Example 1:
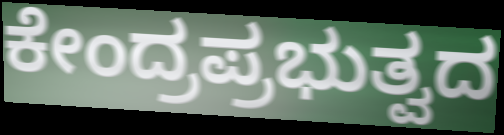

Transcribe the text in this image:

ಕೇಂದ್ರಪ್ರಭುತ್ವದ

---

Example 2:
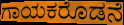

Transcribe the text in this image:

ಗಾಯಕರೊಡನೆ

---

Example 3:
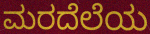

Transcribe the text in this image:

ಮರದೆಲೆಯ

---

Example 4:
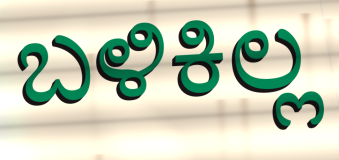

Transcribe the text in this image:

ಬಳಿಕಿಲ್ಲ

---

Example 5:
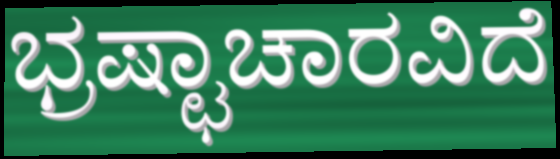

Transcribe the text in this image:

ಭ್ರಷ್ಟಾಚಾರವಿದೆ